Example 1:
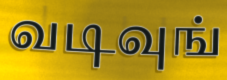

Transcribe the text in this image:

வடிவுங்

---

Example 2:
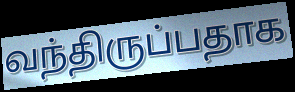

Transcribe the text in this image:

வந்திருப்பதாக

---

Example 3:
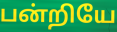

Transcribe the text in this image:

பன்றியே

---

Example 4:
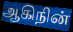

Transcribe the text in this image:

ஆகிநின்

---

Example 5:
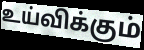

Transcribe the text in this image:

உய்விக்கும்